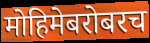
मोहिमेबरोबरच